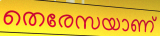
തെരേസയാണ്